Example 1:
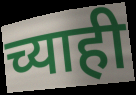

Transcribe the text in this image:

च्याही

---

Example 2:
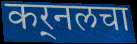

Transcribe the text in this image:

कर्नलचा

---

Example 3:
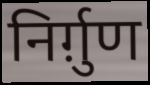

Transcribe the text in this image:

निर्ग़ुण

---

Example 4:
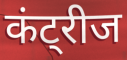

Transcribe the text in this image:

कंट्रीज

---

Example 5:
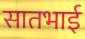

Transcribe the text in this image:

सातभाई